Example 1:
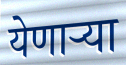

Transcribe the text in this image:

येणाऱ्या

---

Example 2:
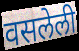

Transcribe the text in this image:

वसलेली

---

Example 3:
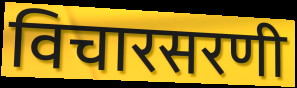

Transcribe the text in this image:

विचारसरणी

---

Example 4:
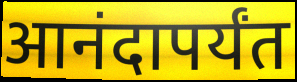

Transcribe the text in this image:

आनंदापर्यंत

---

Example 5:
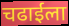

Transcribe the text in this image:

चढाईला